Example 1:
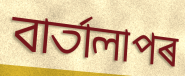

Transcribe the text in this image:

বাৰ্তালাপৰ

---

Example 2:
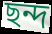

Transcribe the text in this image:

ছন্দ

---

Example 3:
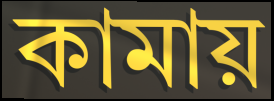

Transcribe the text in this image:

কামায়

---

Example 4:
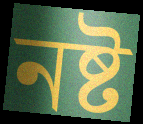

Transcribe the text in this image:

নষ্ট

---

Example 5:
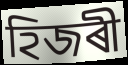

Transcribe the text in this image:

হিজৰী